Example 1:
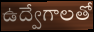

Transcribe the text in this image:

ఉద్వేగాలతో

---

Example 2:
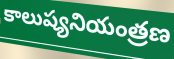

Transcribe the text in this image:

కాలుష్యనియంత్రణ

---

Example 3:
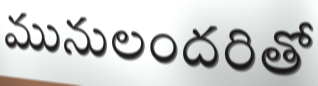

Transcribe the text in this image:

మునులందరితో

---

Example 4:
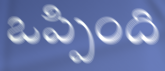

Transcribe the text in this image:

ఒప్పింది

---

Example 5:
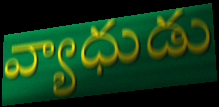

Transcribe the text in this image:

వ్యాధుడు